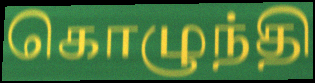
கொழுந்தி